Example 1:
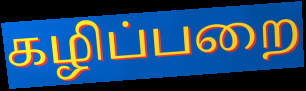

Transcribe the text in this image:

கழிப்பறை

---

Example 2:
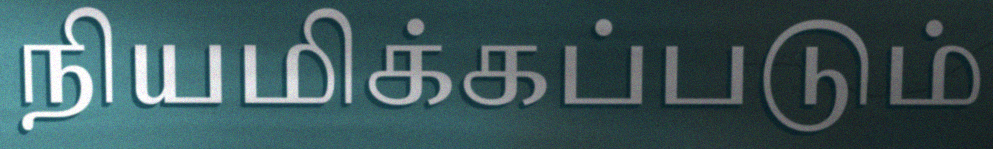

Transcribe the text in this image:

நியமிக்கப்படும்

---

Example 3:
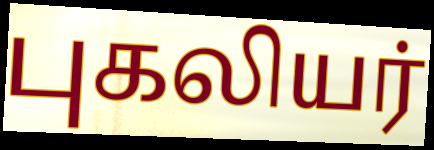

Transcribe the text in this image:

புகலியர்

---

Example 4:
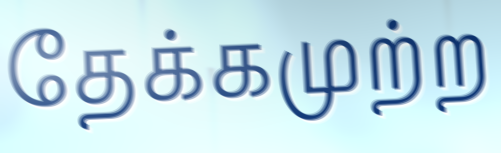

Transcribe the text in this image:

தேக்கமுற்ற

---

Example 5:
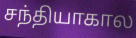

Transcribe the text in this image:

சந்தியாகால